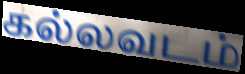
கல்லவடம்